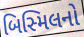
બિસ્મિલનો